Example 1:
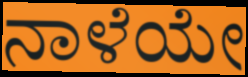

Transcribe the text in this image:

ನಾಳೆಯೇ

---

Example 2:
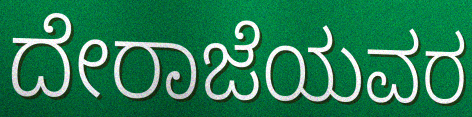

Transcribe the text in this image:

ದೇರಾಜೆಯವರ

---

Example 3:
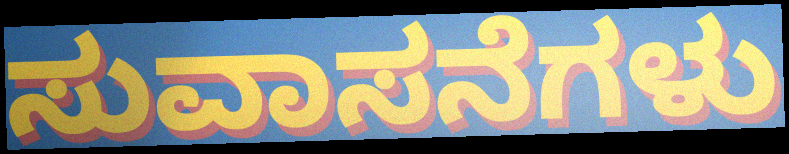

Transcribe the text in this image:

ಸುವಾಸನೆಗಳು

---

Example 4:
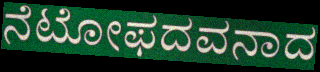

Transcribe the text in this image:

ನೆಟೋಫದವನಾದ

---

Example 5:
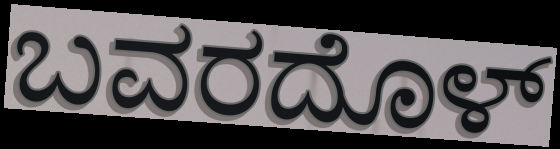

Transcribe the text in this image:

ಬವರದೊಳ್